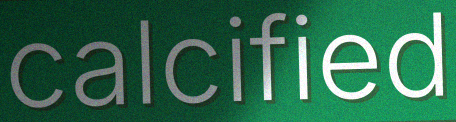
calcified